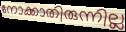
നോക്കാതിരുന്നില്ല